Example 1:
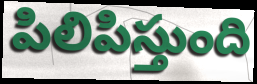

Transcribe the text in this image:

పిలిపిస్తుంది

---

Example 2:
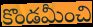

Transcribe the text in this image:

కొండమీంచి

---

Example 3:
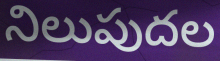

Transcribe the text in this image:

నిలుపుదల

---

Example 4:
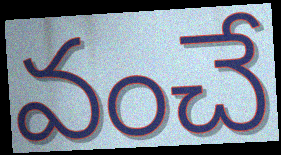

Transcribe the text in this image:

వంచే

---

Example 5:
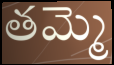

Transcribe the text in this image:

తమ్మె